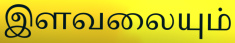
இளவலையும்